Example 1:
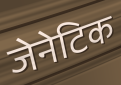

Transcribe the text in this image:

जेनेटिक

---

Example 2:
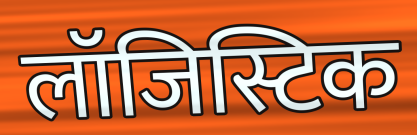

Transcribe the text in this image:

लॉजिस्टिक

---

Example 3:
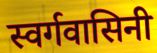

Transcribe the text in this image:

स्वर्गवासिनी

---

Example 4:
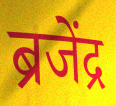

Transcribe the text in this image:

ब्रजेंद्र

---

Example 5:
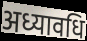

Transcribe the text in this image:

अध्यावधि